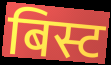
बिस्ट